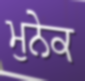
ਮੁਨੇਕ